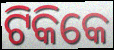
ଟିକିକେ